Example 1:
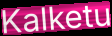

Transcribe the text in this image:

Kalketu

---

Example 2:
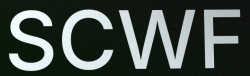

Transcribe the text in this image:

SCWF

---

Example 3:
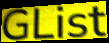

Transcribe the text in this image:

GList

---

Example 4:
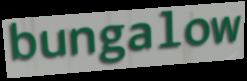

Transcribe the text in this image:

bungalow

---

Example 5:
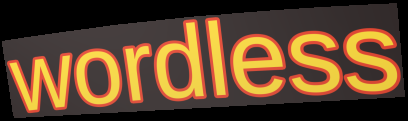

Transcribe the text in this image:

wordless